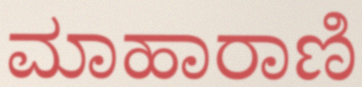
ಮಾಹಾರಾಣಿ